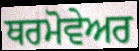
ਥਰਮੋਵੇਅਰ